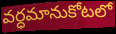
వర్ధమానుకోటలో